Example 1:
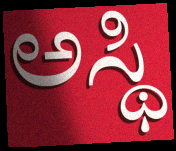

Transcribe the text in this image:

ಅಸ್ಥಿ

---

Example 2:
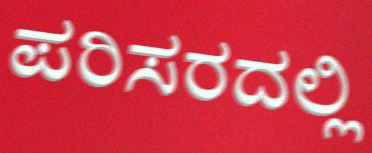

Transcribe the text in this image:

ಪರಿಸರದಲ್ಲಿ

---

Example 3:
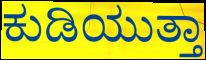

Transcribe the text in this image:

ಕುಡಿಯುತ್ತಾ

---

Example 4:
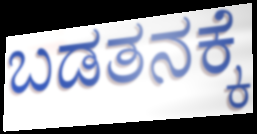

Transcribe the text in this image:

ಬಡತನಕ್ಕೆ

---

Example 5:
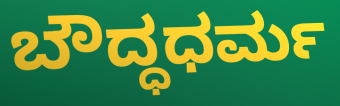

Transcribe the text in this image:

ಬೌದ್ಧಧರ್ಮ